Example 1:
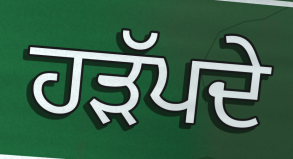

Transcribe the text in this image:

ਹੜੱਪਦੇ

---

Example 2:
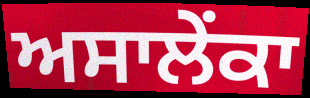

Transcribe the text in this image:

ਅਸਾਲੇਂਕਾ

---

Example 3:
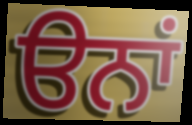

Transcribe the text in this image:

ੳਨਾਂ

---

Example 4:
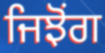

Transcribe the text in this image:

ਜਿਝੋਂਗ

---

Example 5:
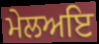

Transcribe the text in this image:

ਮੇਲਅਇ